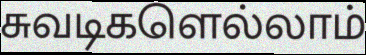
சுவடிகளெல்லாம்